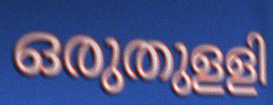
ഒരുതുളളി